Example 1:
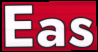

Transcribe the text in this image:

Eas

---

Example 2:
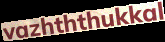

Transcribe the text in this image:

vazhththukkal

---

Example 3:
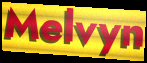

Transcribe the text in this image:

Melvyn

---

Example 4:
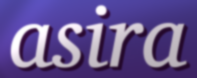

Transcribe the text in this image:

asira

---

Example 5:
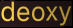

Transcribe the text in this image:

deoxy